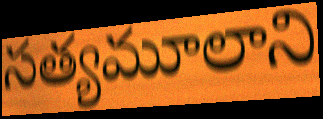
సత్యమూలాని